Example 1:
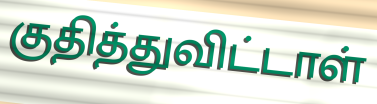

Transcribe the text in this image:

குதித்துவிட்டாள்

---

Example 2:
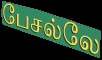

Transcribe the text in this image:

பேசல்லே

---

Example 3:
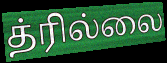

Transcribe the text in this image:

த்ரில்லை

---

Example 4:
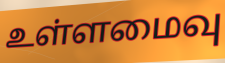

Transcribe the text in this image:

உள்ளமைவு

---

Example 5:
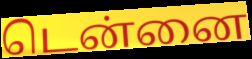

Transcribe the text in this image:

டென்னை